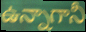
ఉన్నాగానీ